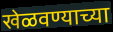
खेळवण्याच्या